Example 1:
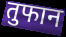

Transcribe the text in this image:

तुफान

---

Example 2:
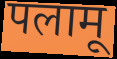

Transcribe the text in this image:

पलामू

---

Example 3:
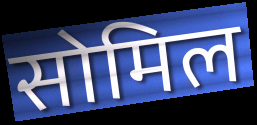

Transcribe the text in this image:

सोमिल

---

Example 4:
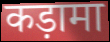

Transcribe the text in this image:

कड़ामा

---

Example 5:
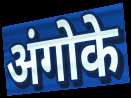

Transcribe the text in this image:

अंगोके